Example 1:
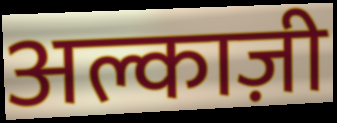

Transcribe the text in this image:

अल्काज़ी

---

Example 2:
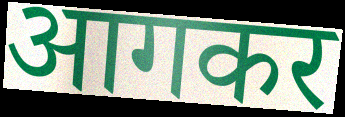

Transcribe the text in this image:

आगकर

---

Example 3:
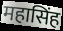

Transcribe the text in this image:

महासिंह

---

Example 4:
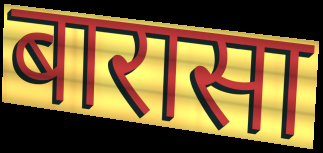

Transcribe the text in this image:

बारासा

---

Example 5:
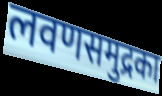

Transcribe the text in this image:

लवणसमुद्रका